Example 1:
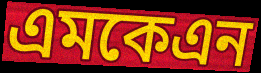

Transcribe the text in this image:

এমকেএন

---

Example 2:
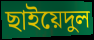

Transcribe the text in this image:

ছাইয়েদুল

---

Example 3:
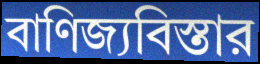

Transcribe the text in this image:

বাণিজ্যবিস্তার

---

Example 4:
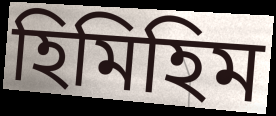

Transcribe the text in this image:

হিমিহিম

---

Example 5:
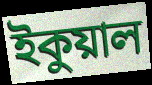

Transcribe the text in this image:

ইকুয়াল